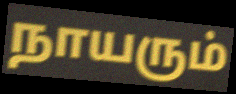
நாயரும்